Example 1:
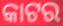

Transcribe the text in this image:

କାଟର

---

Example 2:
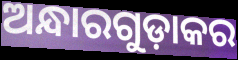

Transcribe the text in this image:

ଅନ୍ଧାରଗୁଡ଼ାକର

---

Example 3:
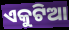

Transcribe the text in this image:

ଏକୁଟିଆ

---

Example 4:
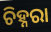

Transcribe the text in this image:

ଚିହ୍ନରା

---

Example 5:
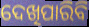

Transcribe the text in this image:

ଦେଖିପାରିବି